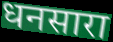
धनसारा